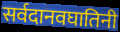
सर्वदानवघातिनी